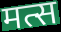
मत्स